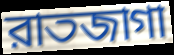
রাতজাগা